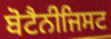
ਬੋਟੈਨੀਜਿਸਟ